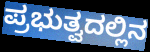
ಪ್ರಭುತ್ವದಲ್ಲಿನ